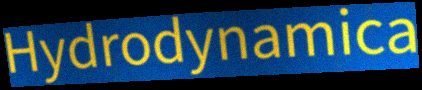
Hydrodynamica